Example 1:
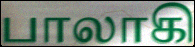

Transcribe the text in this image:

பாலாகி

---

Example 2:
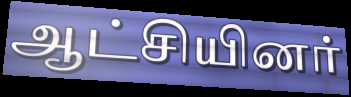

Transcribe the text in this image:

ஆட்சியினர்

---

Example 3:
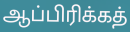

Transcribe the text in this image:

ஆப்பிரிக்கத்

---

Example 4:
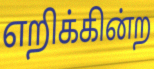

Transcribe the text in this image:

எறிக்கின்ற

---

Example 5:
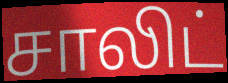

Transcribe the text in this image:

சாலிட்